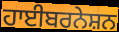
ਹਾਈਬਰਨੇਸ਼ਨ